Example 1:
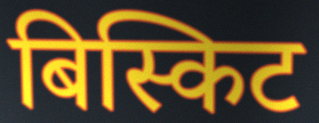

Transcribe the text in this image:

बिस्किट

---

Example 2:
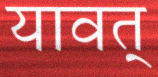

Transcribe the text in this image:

यावत्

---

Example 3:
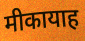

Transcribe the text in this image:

मीकायाह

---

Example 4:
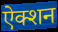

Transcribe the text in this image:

ऐक्शन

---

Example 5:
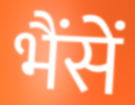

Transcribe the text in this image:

भैंसें